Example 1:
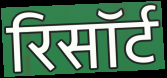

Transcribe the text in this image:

रिसॉर्ट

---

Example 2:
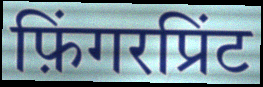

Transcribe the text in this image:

फ़िंगरप्रिंट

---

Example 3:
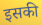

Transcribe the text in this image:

इसकी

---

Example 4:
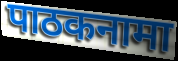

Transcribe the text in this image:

पाठकनामा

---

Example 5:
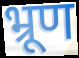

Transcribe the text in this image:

भ्रूण